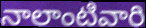
నాలాంటివారి